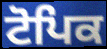
ਟੋਪਿਕ